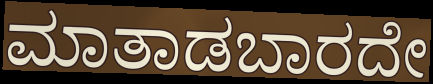
ಮಾತಾಡಬಾರದೇ